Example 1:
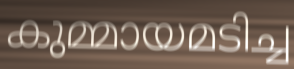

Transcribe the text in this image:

കുമ്മായമടിച്ച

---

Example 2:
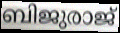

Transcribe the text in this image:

ബിജുരാജ്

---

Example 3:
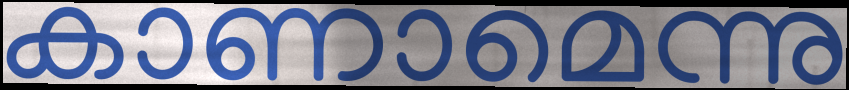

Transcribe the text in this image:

കാണാമെന്നു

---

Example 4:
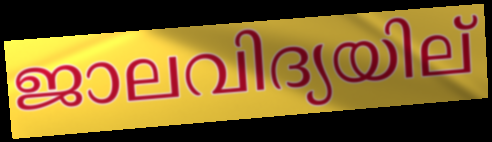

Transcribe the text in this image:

ജാലവിദ്യയില്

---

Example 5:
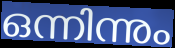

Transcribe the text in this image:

ഒന്നിന്നും